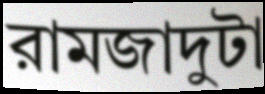
রামজাদুটা